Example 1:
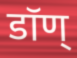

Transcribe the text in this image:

डॉण्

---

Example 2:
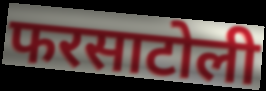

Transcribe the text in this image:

फरसाटोली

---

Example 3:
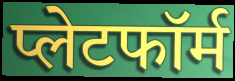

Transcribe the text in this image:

प्लेटफॉर्म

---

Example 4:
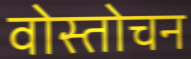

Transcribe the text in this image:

वोस्तोचन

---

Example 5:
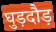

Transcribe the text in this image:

घुड़दौड़